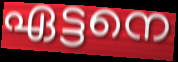
ഏട്ടനെ